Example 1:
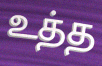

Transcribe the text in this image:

உத்த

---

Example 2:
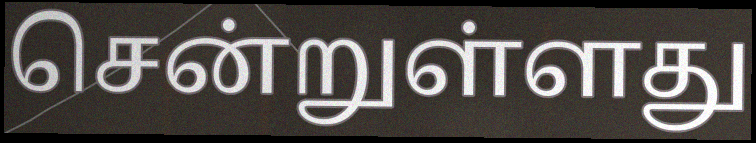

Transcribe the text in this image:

சென்றுள்ளது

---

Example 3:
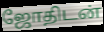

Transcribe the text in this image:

ஜோதிடன்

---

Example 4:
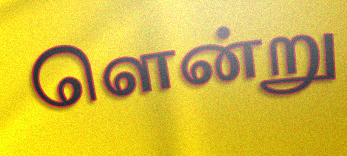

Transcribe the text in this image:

ளென்று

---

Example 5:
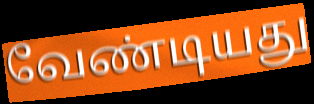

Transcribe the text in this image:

வேண்டியது